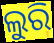
ଲୁରି